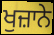
ਖੁਜ਼ਾਨੇ